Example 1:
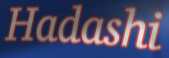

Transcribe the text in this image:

Hadashi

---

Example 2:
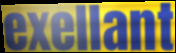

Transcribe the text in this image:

exellant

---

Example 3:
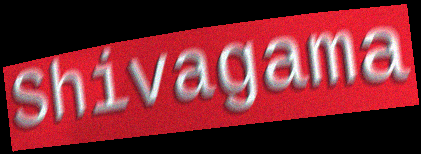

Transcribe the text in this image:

Shivagama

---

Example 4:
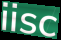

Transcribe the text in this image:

iisc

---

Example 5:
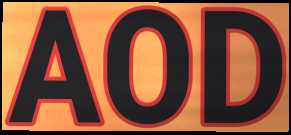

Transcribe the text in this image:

AOD